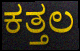
ಕತ್ತಲ